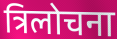
त्रिलोचना